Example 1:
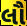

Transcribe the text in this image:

લૌ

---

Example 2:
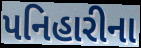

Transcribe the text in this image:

પનિહારીના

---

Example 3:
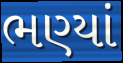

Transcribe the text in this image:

ભણ્યાં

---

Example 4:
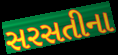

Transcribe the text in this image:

સરસતીના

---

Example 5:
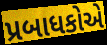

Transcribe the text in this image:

પ્રબાધકોએ